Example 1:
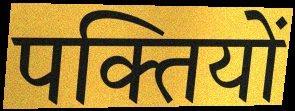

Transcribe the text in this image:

पक्तियों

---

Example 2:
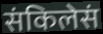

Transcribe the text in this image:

संकिलेसं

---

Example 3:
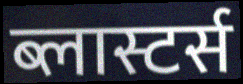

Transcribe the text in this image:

ब्लास्टर्स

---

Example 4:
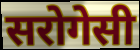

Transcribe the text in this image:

सरोगेसी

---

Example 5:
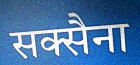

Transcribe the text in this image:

सक्सैना